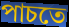
পাচতে